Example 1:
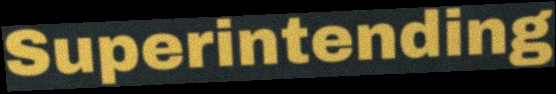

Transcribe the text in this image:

Superintending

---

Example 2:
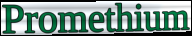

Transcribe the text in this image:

Promethium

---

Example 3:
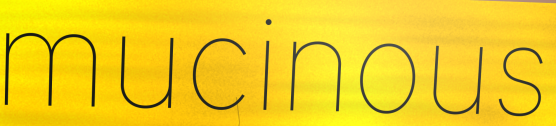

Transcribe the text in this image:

mucinous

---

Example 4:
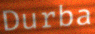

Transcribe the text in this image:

Durba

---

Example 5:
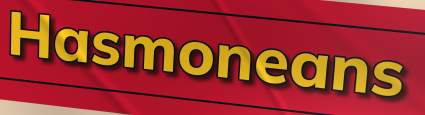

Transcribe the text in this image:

Hasmoneans